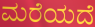
ಮರೆಯದೆ